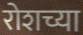
रोशच्या